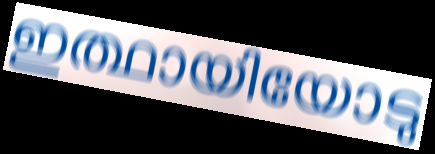
ഇത്ഥായിയോടു